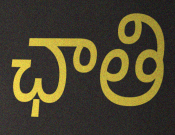
ఛాతి